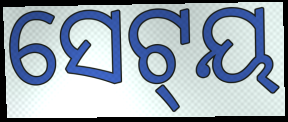
ସେଟ୍‌ୟ